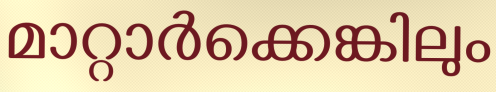
മാറ്റാർക്കെങ്കിലും